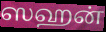
ஸஹன்